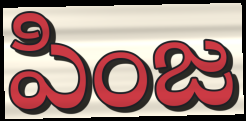
పింజ